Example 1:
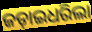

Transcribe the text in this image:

ଜଡ଼ାଇଧରିଲା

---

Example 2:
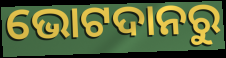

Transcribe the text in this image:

ଭୋଟଦାନରୁ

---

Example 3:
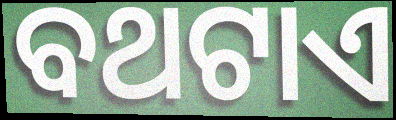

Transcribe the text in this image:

ବଥଟାଏ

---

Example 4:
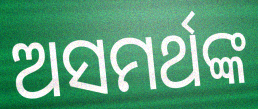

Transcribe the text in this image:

ଅସମର୍ଥଙ୍କ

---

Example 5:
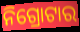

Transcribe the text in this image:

ନିଗ୍ରୋଟାର